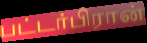
பட்டர்பிரான்